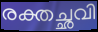
രക്തച്ഛവി